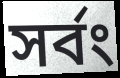
সর্বং